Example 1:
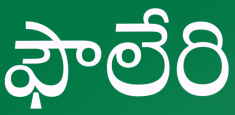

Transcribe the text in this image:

ఫౌలేరి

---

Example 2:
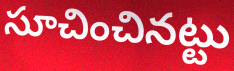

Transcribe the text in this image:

సూచించినట్టు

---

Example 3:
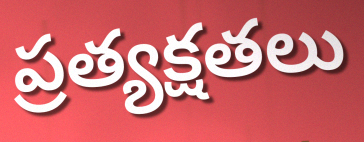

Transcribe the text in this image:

ప్రత్యక్షతలు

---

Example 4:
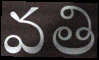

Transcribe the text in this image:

వతి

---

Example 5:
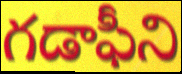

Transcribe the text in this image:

గడాఫీని